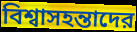
বিশ্বাসহন্তাদের